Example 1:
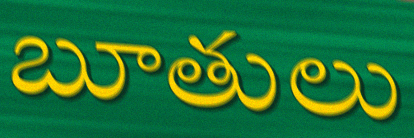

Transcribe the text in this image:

బూతులు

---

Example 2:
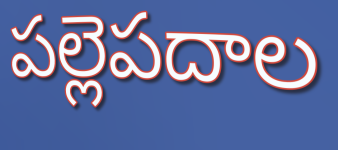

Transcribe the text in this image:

పల్లెపదాల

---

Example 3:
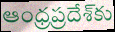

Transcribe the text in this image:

ఆంధ్రప్రదేశ్‌కు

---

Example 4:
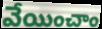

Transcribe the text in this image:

వేయించాం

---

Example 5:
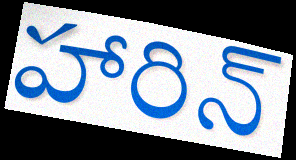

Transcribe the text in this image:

హారిన్